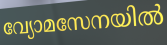
വ്യോമസേനയിൽ